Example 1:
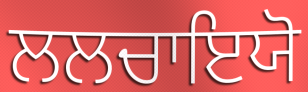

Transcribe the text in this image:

ਲਲਚਾਇਯੋ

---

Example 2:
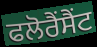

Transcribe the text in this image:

ਫਲੋਰੈਂਸੈਂਟ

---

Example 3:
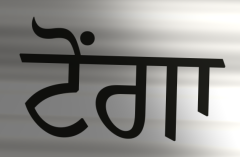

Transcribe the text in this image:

ਟੋਂਗਾ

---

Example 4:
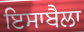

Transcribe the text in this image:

ਇਸਾਬੈਲਾ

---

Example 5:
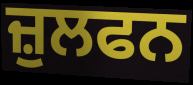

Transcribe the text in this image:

ਜ਼ੁਲਫਨ